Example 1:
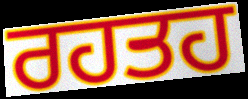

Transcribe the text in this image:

ਰਹਤਹ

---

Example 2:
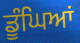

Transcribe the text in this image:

ਡੂੰਘਿਆਂ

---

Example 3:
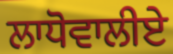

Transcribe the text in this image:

ਲਾਧੋਵਾਲੀਏ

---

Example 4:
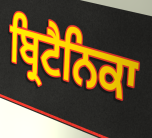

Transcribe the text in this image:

ਬ੍ਰਿਟੈਨਿਕਾ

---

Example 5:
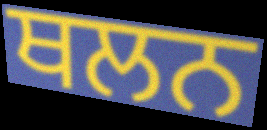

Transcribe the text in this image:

ਥਲਨ